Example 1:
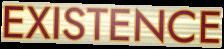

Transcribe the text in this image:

EXISTENCE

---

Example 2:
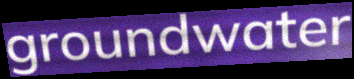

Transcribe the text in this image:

groundwater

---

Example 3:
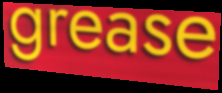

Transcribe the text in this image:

grease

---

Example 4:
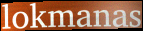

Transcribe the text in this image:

lokmanas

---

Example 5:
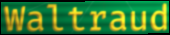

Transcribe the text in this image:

Waltraud